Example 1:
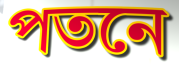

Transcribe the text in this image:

পতনে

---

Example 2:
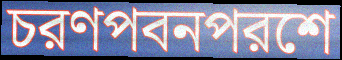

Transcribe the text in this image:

চরণপবনপরশে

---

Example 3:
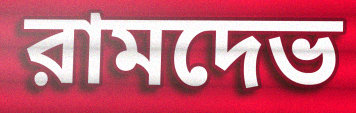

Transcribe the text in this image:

রামদেভ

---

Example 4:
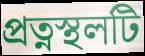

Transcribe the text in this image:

প্রত্নস্থলটি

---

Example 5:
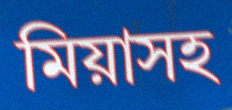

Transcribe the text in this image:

মিয়াসহ